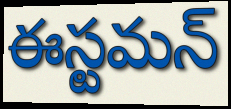
ఈస్టమన్